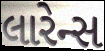
લારેન્સ